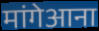
मांगेआना